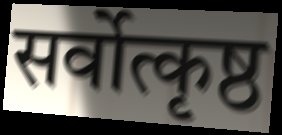
सर्वोत्कृष्ठ